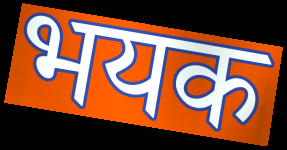
भयक